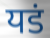
यडं